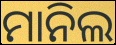
ମାନିଲ